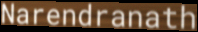
Narendranath